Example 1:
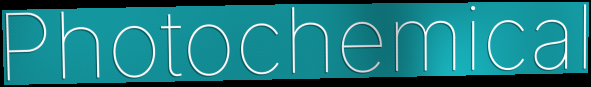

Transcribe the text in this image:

Photochemical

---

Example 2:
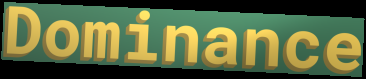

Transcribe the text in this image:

Dominance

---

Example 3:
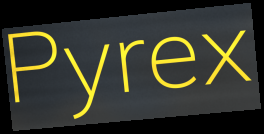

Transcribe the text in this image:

Pyrex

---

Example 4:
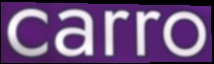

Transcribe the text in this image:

carro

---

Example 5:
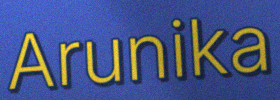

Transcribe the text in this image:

Arunika